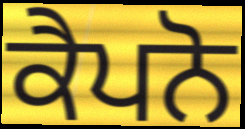
ਕੈਪਨੋ